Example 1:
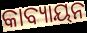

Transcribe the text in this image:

କାବ୍ୟାୟନ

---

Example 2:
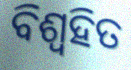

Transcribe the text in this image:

ବିଶ୍ଵହିତ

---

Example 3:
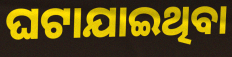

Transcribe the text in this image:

ଘଟାଯାଇଥିବା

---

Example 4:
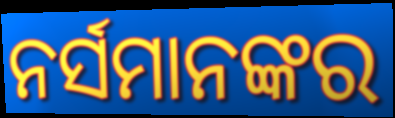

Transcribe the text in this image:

ନର୍ସମାନଙ୍କର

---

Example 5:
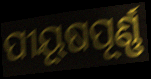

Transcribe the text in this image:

ପୀୟୂଷପୂର୍ଣ୍ଣ